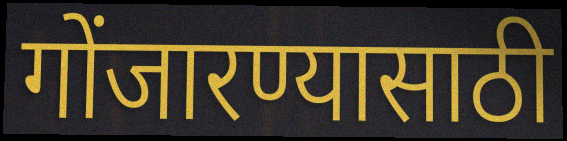
गोंजारण्यासाठी